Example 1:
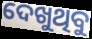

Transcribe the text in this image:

ଦେଖୁଥିବୁ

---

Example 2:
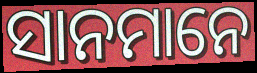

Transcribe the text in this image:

ସାନମାନେ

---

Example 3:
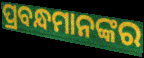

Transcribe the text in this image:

ପ୍ରବନ୍ଧମାନଙ୍କର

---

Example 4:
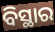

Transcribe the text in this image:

ବିସ୍ଥାର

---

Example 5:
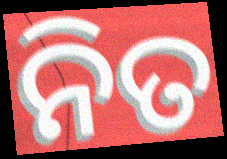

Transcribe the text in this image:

ନିତ